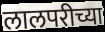
लालपरीच्या